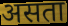
असता